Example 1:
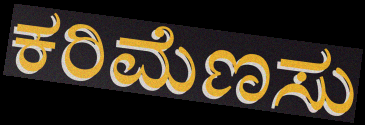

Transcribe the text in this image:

ಕರಿಮೆಣಸು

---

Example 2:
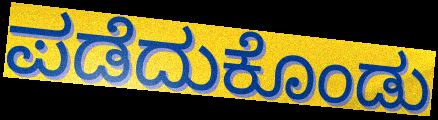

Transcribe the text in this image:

ಪಡೆದುಕೊಂಡು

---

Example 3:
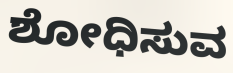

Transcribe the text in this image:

ಶೋಧಿಸುವ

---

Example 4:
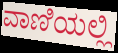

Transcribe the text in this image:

ವಾಣಿಯಲ್ಲಿ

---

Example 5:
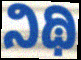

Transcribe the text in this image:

ನಿಥಿ